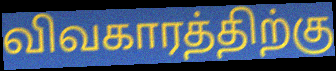
விவகாரத்திற்கு